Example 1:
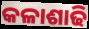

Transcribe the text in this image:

କଳାଶାଢି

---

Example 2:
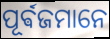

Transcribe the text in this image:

ପୂର୍ଵଜମାନେ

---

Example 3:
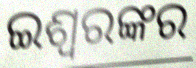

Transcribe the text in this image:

ଇଶ୍ୱରଙ୍କର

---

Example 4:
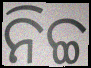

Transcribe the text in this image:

ନିଚ୍ଚ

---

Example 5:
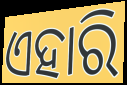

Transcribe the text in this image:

ଏହାରି